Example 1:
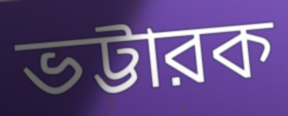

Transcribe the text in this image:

ভট্টারক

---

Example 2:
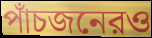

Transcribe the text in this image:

পাঁচজনেরও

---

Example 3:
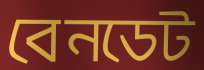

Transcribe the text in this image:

বেনডেট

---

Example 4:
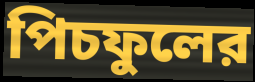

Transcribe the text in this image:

পিচফুলের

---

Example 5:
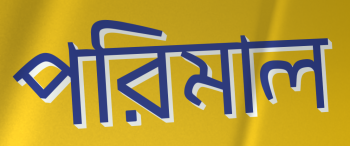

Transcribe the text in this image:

পরিমাল